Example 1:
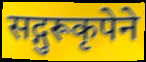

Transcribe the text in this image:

सद्गुरूकृपेने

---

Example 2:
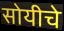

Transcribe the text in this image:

सोयीचे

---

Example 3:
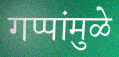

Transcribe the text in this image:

गप्पांमुळे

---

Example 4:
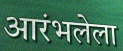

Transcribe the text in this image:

आरंभलेला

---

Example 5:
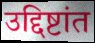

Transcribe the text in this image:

उद्दिष्टांत